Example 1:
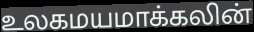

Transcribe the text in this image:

உலகமயமாக்கலின்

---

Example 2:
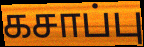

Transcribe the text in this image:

கசாப்பு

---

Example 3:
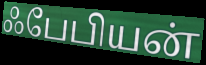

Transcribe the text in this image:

ஃபேபியன்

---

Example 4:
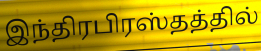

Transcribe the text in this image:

இந்திரபிரஸ்தத்தில்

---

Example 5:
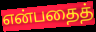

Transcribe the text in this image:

என்பதைத்